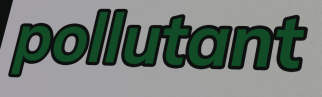
pollutant